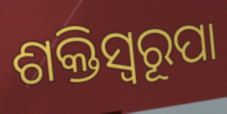
ଶକ୍ତିସ୍ବରୂପା